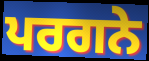
ਪਰਗਨੇ